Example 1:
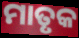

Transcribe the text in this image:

ମାତୃକ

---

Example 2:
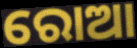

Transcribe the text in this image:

ରୋଆ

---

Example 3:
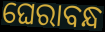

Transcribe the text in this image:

ଘେରାବନ୍ଧ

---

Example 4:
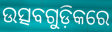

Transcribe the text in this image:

ଉତ୍ସବଗୁଡ଼ିକରେ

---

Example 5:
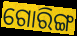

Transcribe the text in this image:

ଗୋରିଙ୍ଗ